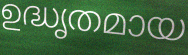
ഉദ്ധൃതമായ